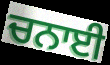
ਚਨਾਈ